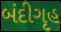
બંદીગૃહ